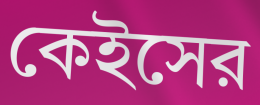
কেইসের